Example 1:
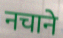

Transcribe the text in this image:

नचाने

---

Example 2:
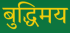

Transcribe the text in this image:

बुद्धिमय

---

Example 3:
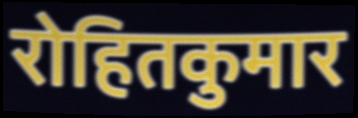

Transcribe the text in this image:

रोहितकुमार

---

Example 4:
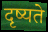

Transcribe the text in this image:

दृष्यते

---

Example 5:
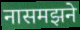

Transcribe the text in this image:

नासमझने